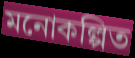
মনোকল্পিত